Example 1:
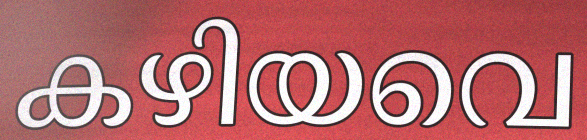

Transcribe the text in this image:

കഴിയവെ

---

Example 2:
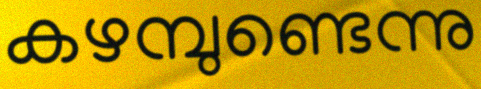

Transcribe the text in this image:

കഴമ്പുണ്ടെന്നു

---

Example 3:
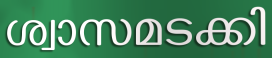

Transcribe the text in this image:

ശ്വാസമടക്കി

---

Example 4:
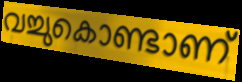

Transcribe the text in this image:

വച്ചുകൊണ്ടാണ്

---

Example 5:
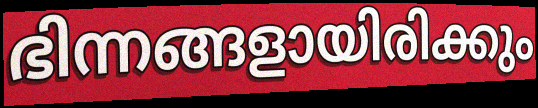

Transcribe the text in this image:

ഭിന്നങ്ങളായിരിക്കും